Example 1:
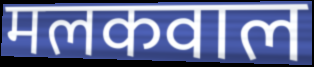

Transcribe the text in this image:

मलकवाल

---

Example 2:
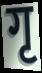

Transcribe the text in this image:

गृ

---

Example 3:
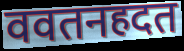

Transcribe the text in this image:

ववतनहदत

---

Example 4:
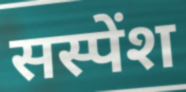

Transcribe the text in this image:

सस्पेंश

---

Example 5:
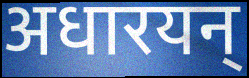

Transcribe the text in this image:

अधारयन्